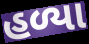
હળ્યા